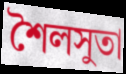
শৈলসুতা